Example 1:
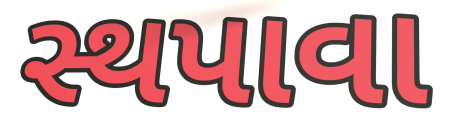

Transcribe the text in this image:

સ્થપાવા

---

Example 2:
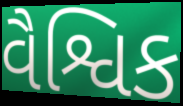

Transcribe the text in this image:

વૈશ્વિક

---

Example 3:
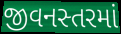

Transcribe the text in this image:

જીવનસ્તરમાં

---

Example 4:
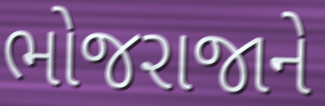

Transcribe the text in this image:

ભોજરાજાને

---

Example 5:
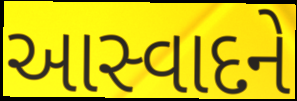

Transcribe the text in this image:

આસ્વાદને